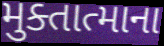
મુક્તાત્માના